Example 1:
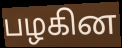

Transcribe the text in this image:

பழகின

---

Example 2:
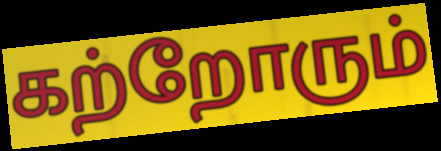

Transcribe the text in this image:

கற்றோரும்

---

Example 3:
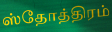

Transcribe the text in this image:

ஸ்தோத்திரம்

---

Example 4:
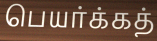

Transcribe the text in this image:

பெயர்க்கத்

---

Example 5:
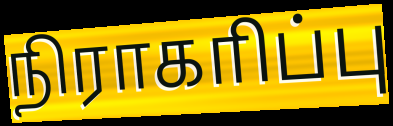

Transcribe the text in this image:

நிராகரிப்பு